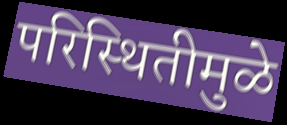
परिस्थितीमुळे